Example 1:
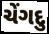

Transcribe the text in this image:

ચેંગદુ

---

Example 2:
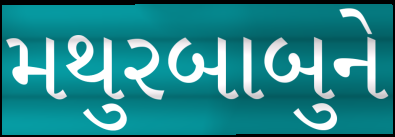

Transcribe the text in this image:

મથુરબાબુને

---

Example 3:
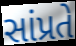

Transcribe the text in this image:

સાંપ્રતે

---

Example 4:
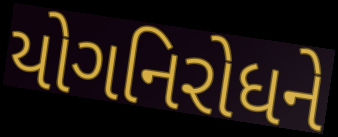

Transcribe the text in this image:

યોગનિરોધને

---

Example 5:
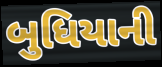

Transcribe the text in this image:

બુધિયાની